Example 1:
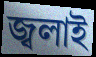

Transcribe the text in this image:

জ্বলাই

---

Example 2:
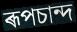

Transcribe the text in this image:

ৰূপচান্দ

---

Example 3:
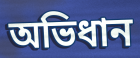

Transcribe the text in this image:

অভিধান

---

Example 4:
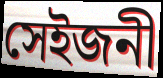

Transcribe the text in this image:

সেইজনী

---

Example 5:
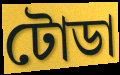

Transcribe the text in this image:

টোডা